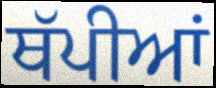
ਥੱਪੀਆਂ